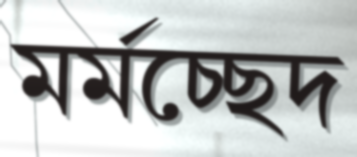
মর্মচ্ছেদ